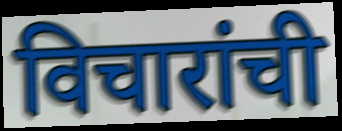
विचारांची